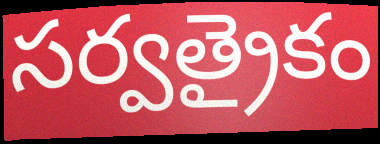
సర్వత్రైకం